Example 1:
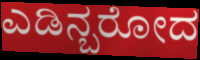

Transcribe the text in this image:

ಎಡಿನ್ಬರೋದ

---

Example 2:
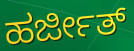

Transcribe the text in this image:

ಹರ್ಜೀತ್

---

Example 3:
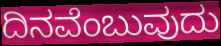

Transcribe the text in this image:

ದಿನವೆಂಬುವುದು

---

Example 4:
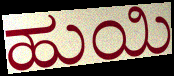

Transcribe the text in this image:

ಹುಯಿ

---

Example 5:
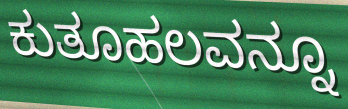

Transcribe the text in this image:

ಕುತೂಹಲವನ್ನೂ